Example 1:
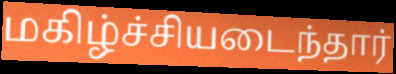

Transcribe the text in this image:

மகிழ்ச்சியடைந்தார்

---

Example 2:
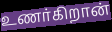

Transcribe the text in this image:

உணர்கிறான்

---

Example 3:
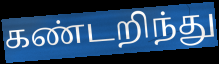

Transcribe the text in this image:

கண்டறிந்து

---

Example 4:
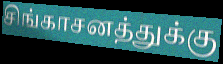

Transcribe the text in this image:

சிங்காசனத்துக்கு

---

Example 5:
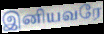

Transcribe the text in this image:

இனியவரே